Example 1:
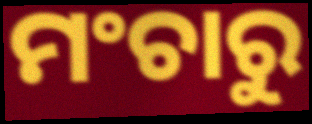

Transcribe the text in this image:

ମଂଚାରୁ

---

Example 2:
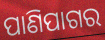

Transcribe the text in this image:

ପାଣିପାଗର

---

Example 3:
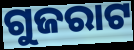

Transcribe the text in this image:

ଗୁଜରାଟ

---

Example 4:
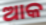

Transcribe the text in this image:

ଆକ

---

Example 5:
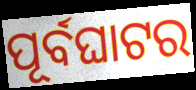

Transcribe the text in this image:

ପୂର୍ବଘାଟର